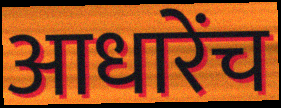
आधारेंच